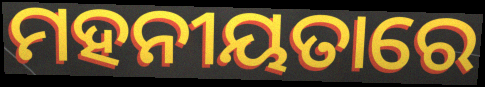
ମହନୀୟତାରେ